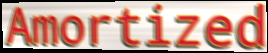
Amortized